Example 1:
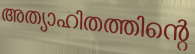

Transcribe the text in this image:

അത്യാഹിതത്തിന്റെ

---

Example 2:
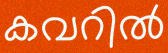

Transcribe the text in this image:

കവറിൽ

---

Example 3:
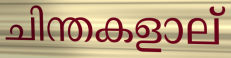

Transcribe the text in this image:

ചിന്തകളാല്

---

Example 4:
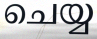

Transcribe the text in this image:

ചെയ്യ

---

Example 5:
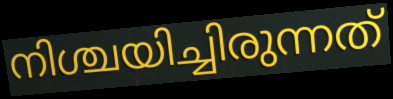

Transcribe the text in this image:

നിശ്ചയിച്ചിരുന്നത്